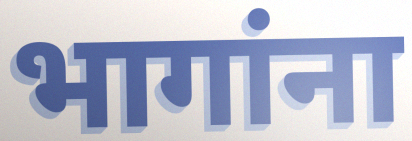
भागांना